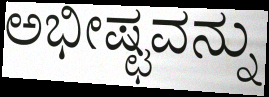
ಅಭೀಷ್ಟವನ್ನು